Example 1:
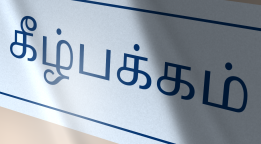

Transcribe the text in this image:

கீழ்பக்கம்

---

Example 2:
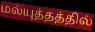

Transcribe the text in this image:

மல்யுத்தத்தில்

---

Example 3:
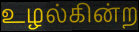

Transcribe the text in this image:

உழல்கின்ற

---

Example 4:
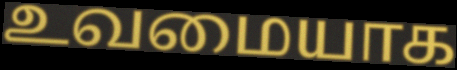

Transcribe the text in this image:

உவமையாக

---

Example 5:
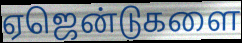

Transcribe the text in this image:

ஏஜென்டுகளை